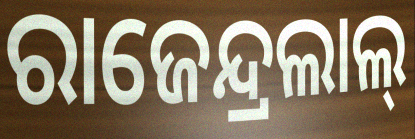
ରାଜେନ୍ଦ୍ରଲାଲ୍